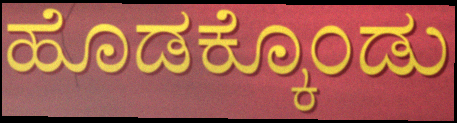
ಹೊಡಕ್ಕೊಂಡು